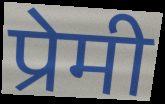
प्रेमी